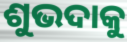
ଶୁଭଦାକୁ